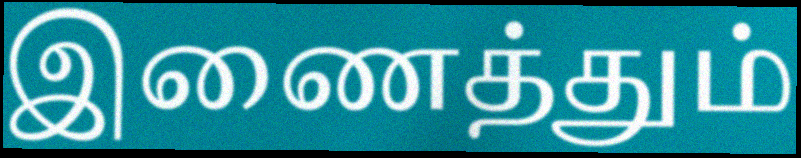
இணைத்தும்